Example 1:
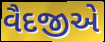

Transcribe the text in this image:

વૈદજીએ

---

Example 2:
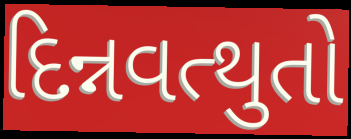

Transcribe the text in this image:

દિન્નવત્થુતો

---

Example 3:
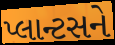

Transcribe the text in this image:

પ્લાન્ટસને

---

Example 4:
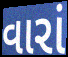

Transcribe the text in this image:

વારાં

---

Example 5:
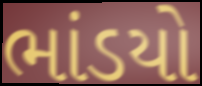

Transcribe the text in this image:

ભાંડયો